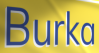
Burka